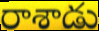
రాశాడు